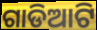
ଗାଡିଆଟି